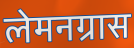
लेमनग्रास